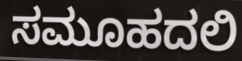
ಸಮೂಹದಲಿ